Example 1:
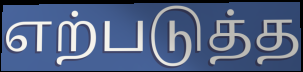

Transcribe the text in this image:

எற்படுத்த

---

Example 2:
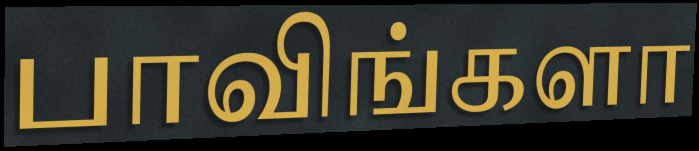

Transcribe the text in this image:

பாவிங்களா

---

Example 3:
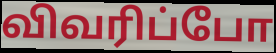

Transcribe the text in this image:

விவரிப்போ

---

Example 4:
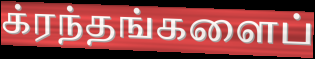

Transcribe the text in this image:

க்ரந்தங்களைப்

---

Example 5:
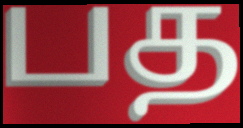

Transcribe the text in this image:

பத